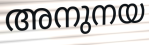
അനുനയ